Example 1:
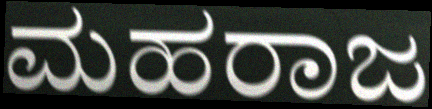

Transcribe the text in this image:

ಮಹರಾಜ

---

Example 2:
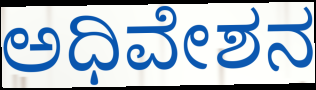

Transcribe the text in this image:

ಅಧಿವೇಶನ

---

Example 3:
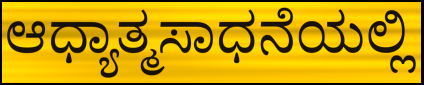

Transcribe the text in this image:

ಆಧ್ಯಾತ್ಮಸಾಧನೆಯಲ್ಲಿ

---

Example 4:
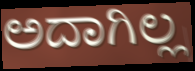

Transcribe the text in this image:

ಅದಾಗಿಲ್ಲ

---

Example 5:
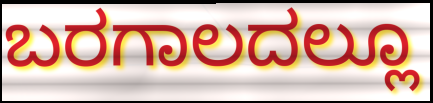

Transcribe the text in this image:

ಬರಗಾಲದಲ್ಲೂ